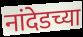
नांदेडच्या